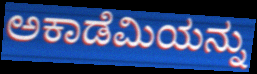
ಅಕಾಡೆಮಿಯನ್ನು